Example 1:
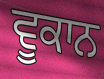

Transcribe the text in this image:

ਵੂਕਾਨ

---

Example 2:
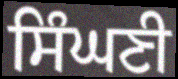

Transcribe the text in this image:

ਸਿੰਘਣੀ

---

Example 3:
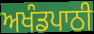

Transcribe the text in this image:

ਅਖੰਡਪਾਠੀ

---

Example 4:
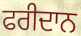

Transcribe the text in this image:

ਫਰੀਦਾਨ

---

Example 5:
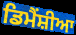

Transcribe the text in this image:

ਡਿਮੈਂਸ਼ੀਆ